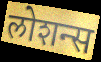
लोशन्स